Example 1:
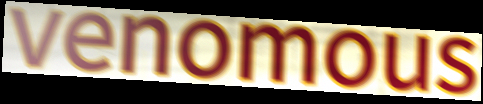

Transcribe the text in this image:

venomous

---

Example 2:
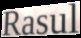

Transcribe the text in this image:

Rasul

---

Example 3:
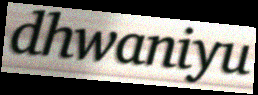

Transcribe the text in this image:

dhwaniyu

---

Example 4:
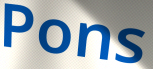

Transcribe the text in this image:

Pons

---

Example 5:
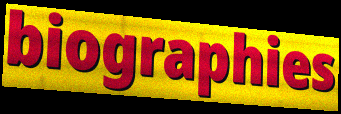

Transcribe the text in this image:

biographies